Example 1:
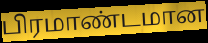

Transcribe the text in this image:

பிரமாண்டமான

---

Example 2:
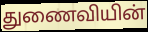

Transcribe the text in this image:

துணைவியின்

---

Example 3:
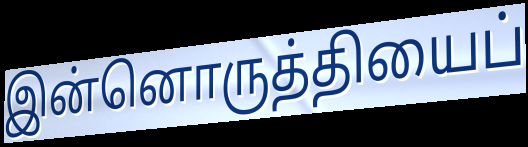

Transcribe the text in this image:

இன்னொருத்தியைப்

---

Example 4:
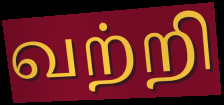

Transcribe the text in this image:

வற்றி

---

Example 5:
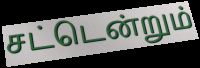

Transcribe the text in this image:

சட்டென்றும்